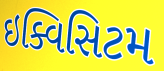
ઇક્વિસિટમ